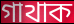
গাথাক